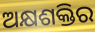
ଅକ୍ଷଶକ୍ତିର